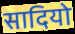
सादियो